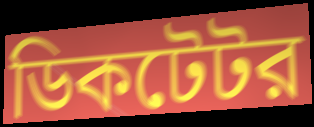
ডিকটেটর